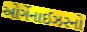
ઓર્ગેનાઈઝરનો